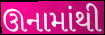
ઊનામાંથી